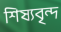
শিষ্যবৃন্দ